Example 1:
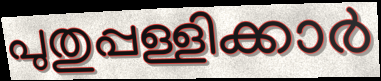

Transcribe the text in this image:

പുതുപ്പള്ളിക്കാർ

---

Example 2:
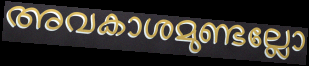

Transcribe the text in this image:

അവകാശമുണ്ടല്ലോ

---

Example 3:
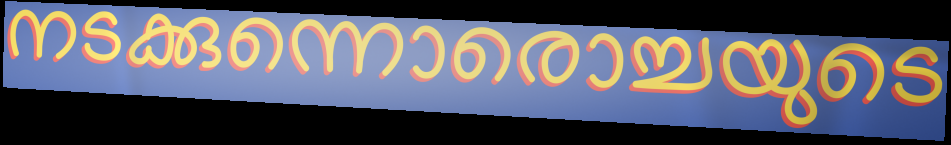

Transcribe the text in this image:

നടക്കുന്നൊരൊച്ചയുടെ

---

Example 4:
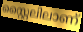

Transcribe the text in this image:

സ്റ്റൈലിലാണ്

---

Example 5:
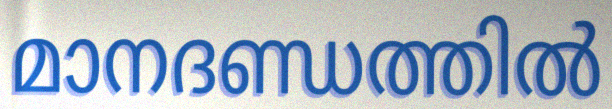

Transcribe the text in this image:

മാനദണ്ഡത്തിൽ